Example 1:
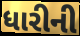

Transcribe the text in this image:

ધારીની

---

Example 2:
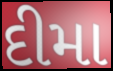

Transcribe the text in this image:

દીમા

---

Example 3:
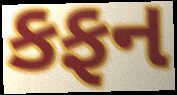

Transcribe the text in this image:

કફન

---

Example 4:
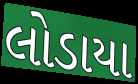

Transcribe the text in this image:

લોડાયા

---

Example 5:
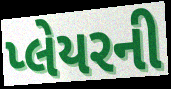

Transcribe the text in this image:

પ્લેયરની